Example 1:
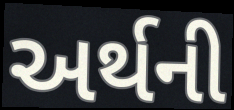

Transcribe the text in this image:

અર્થની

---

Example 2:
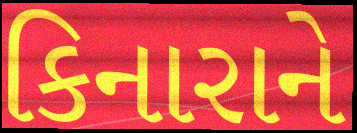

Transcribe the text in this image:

કિનારાને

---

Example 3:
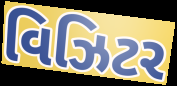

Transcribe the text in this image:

વિઝિટર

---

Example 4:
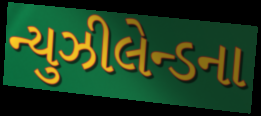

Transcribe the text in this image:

ન્યુઝીલેન્ડના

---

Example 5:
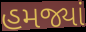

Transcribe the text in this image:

હમજ્યાં